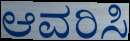
ಆವರಿಸಿ